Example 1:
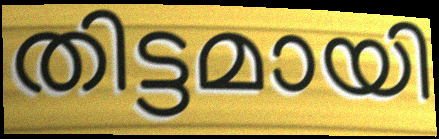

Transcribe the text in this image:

തിട്ടമായി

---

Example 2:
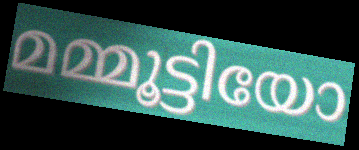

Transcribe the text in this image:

മമ്മൂട്ടിയോ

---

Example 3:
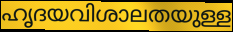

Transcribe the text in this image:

ഹൃദയവിശാലതയുള്ള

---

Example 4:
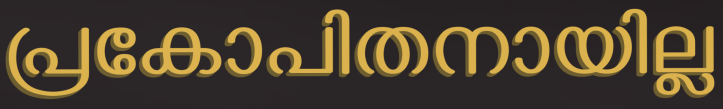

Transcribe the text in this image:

പ്രകോപിതനായില്ല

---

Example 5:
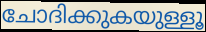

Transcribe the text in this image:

ചോദിക്കുകയുള്ളൂ